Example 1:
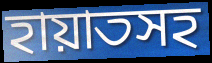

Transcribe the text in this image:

হায়াতসহ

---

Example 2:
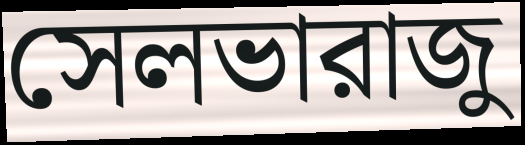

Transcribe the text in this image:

সেলভারাজু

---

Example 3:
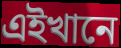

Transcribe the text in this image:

এইখানে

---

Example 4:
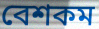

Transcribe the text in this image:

বেশকম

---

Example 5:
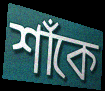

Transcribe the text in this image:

শাঁকে